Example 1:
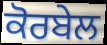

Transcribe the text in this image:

ਕੋਰਬੇਲ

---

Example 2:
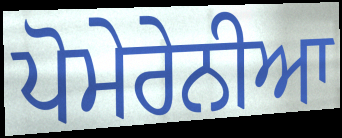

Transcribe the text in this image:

ਪੋਮੇਰੇਨੀਆ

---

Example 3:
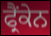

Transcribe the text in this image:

ਫ੍ਰੈਂਕੇਨ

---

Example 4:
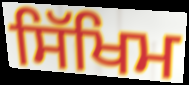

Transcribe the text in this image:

ਸਿੱਖਿਮ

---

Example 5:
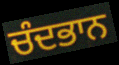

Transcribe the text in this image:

ਚੰਦਭਾਨ